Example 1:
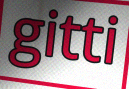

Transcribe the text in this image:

gitti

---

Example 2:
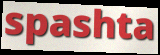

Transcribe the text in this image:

spashta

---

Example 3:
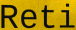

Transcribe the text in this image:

Reti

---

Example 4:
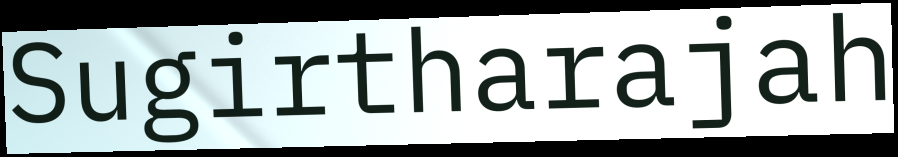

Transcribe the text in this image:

Sugirtharajah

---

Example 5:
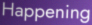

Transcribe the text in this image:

Happening